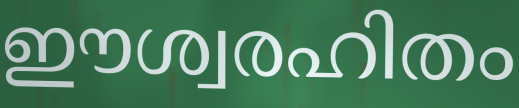
ഈശ്വരഹിതം